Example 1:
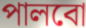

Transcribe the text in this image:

পালবো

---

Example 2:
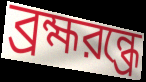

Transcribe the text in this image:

ব্রহ্মরন্ধ্রে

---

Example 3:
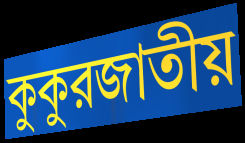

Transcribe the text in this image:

কুকুরজাতীয়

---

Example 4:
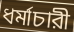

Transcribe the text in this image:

ধর্মাচারী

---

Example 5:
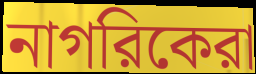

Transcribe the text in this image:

নাগরিকেরা